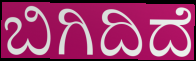
ಬಿಗಿದಿದೆ